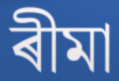
ৰীমা